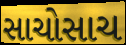
સાચોસાચ